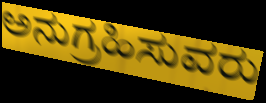
ಅನುಗ್ರಹಿಸುವರು